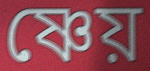
ষ্ণেয়